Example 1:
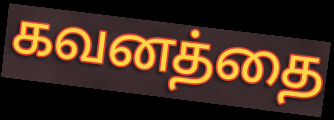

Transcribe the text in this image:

கவனத்தை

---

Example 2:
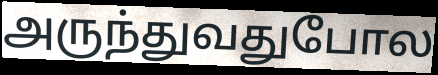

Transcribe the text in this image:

அருந்துவதுபோல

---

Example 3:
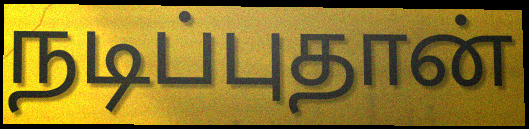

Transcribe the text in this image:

நடிப்புதான்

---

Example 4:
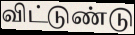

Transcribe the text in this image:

விட்டுண்டு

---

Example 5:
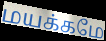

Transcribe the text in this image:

மயக்கமே